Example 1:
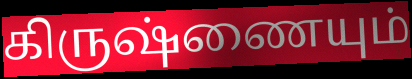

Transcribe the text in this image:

கிருஷ்ணையும்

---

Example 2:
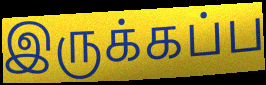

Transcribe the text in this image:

இருக்கப்ப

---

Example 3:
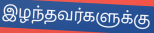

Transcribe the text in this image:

இழந்தவர்களுக்கு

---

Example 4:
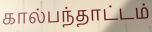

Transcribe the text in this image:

கால்பந்தாட்டம்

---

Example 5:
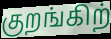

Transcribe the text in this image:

குறங்கிற்